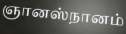
ஞானஸ்நானம்